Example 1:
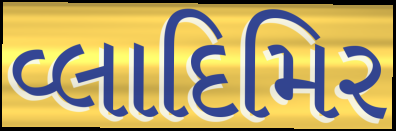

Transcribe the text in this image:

વ્લાદિમિર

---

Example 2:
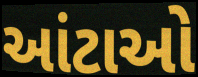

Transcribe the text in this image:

આંટાઓ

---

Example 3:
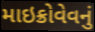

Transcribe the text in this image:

માઇક્રોવેવનું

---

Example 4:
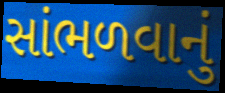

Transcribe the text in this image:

સાંભળવાનું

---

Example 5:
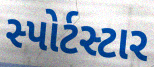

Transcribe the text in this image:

સ્પોર્ટસ્ટાર